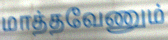
மாத்தவேணும்